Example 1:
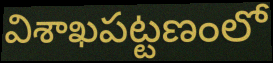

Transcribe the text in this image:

విశాఖపట్టణంలో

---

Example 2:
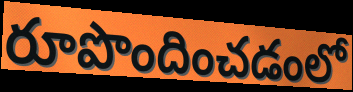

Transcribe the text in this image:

రూపొందించడంలో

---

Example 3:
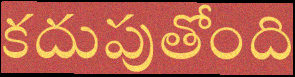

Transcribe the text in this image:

కదుపుతోంది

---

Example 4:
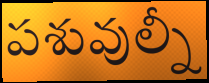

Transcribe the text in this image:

పశువుల్నీ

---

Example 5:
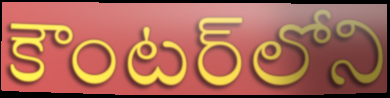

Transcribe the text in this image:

కౌంటర్‌లోని